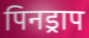
पिनड्राप